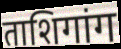
ताशिगांग